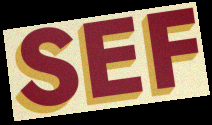
SEF